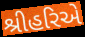
શ્રીહરિએ